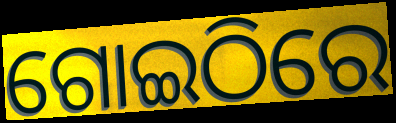
ଗୋଇଠିରେ